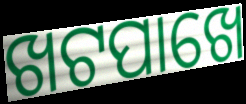
ଖଟପାଖେ